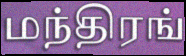
மந்திரங்